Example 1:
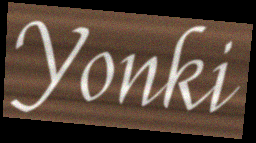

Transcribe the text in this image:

Yonki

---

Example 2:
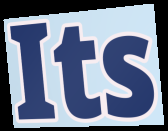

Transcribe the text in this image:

Its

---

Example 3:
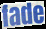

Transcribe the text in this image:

fade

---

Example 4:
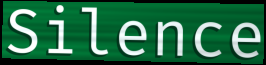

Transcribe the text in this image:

Silence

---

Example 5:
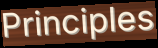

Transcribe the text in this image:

Principles